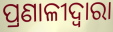
ପ୍ରଣାଳୀଦ୍ୱାରା